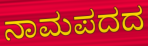
ನಾಮಪದದ